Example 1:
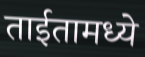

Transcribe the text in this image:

ताईतामध्ये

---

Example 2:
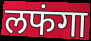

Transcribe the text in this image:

लफंगा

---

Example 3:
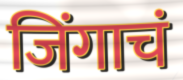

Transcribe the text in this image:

जिंगाचं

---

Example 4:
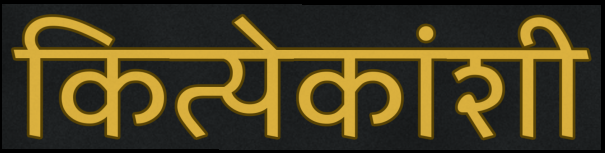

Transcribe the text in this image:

कित्येकांशी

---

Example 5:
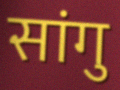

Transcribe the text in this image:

सांगु